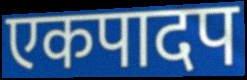
एकपादप